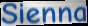
Sienna